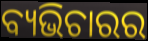
ବ୍ୟଭିଚାରର